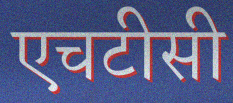
एचटीसी